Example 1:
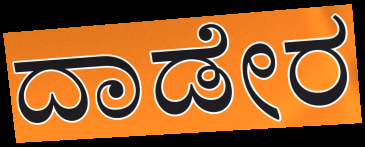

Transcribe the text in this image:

ದಾಡೇರ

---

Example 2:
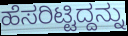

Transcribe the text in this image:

ಹೆಸರಿಟ್ಟಿದ್ದನ್ನು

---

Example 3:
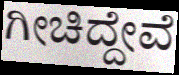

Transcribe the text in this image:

ಗೀಚಿದ್ದೇವೆ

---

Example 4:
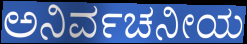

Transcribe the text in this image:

ಅನಿರ್ವಚನೀಯ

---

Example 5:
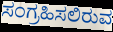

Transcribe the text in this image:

ಸಂಗ್ರಹಿಸಲಿರುವ